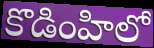
కొడింహిలో